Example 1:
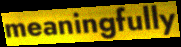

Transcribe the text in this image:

meaningfully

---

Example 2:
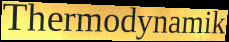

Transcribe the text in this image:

Thermodynamik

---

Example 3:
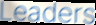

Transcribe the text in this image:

Leaders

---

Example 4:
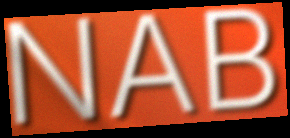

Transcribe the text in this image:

NAB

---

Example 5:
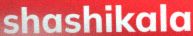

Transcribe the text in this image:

shashikala